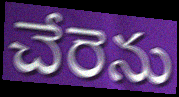
చేరెను